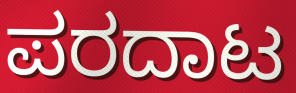
ಪರದಾಟ